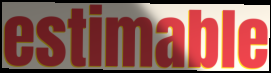
estimable